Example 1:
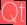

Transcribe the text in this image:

Qt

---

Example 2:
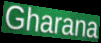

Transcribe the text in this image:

Gharana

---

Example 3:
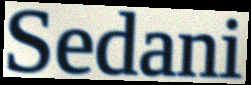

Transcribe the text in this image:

Sedani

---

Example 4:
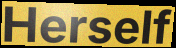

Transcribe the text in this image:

Herself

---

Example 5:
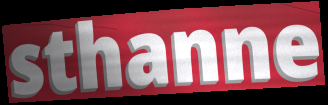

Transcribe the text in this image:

sthanne